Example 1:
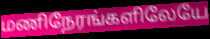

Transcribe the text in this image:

மணிநேரங்களிலேயே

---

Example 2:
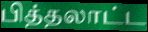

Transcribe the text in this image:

பித்தலாட்ட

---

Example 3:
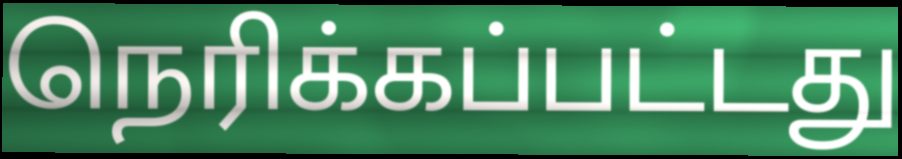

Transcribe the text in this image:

நெரிக்கப்பட்டது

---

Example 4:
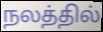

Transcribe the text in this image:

நலத்தில்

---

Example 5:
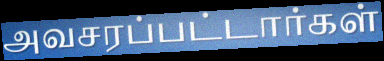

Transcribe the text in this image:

அவசரப்பட்டார்கள்